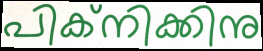
പിക്നിക്കിനു